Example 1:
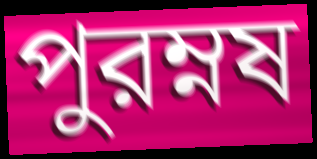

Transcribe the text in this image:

পুরম্নষ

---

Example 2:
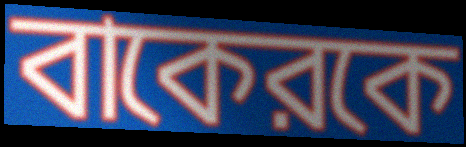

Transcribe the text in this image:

বাকেরকে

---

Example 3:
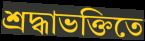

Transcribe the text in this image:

শ্রদ্ধাভক্তিতে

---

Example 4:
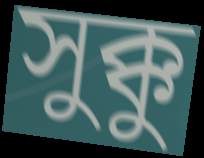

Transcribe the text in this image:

সুক্কু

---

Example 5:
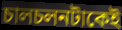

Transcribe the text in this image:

চালচলনটাকেই